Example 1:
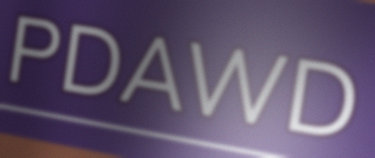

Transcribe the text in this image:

PDAWD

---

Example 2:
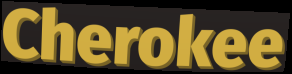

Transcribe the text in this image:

Cherokee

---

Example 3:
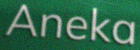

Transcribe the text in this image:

Aneka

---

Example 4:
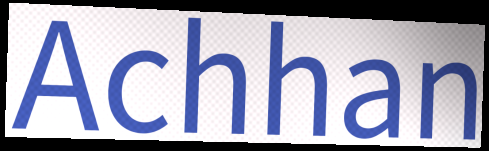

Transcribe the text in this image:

Achhan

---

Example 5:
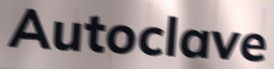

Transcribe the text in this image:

Autoclave